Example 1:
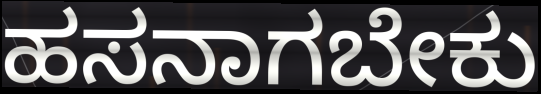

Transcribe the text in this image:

ಹಸನಾಗಬೇಕು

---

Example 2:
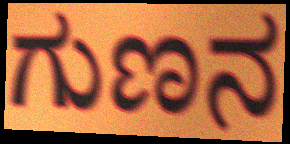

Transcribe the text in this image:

ಗುಣನ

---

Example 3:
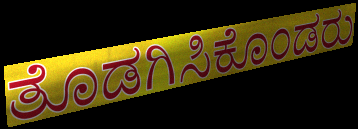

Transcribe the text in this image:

ತೊಡಗಿಸಿಕೊಂಡರು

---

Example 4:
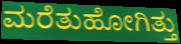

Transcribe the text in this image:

ಮರೆತುಹೋಗಿತ್ತು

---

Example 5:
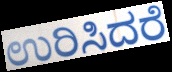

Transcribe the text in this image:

ಉರಿಸಿದರೆ